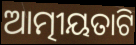
ଆତ୍ମୀୟତାଟି